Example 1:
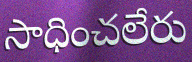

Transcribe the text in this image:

సాధించలేరు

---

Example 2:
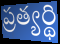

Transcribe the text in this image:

ప్రత్యర్థి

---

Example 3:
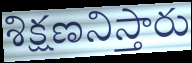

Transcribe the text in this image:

శిక్షణనిస్తారు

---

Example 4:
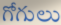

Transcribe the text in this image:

గోగులు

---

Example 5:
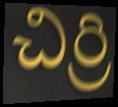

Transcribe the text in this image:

చిర్రి